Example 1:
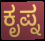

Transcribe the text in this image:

ಕೃಪ್ನ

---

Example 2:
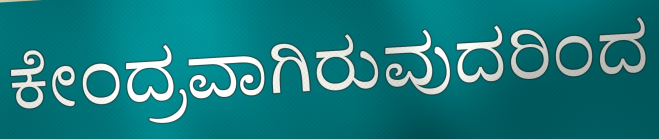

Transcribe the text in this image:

ಕೇಂದ್ರವಾಗಿರುವುದರಿಂದ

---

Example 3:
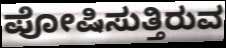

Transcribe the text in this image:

ಪೋಷಿಸುತ್ತಿರುವ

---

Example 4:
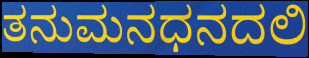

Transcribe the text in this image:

ತನುಮನಧನದಲಿ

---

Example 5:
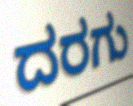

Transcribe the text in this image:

ದರಗು